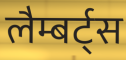
लैम्बर्ट्स